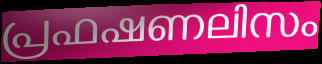
പ്രഫഷണലിസം